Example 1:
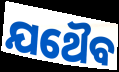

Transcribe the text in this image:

ଯଥୈବ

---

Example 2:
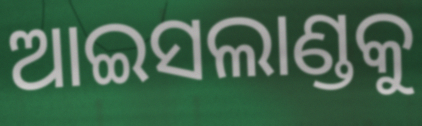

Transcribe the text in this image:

ଆଇସଲାଣ୍ଡକୁ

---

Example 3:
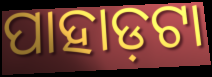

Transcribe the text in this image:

ପାହାଡ଼ଟା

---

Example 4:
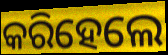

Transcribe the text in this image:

କରିହେଲେ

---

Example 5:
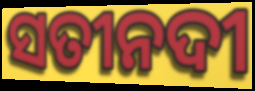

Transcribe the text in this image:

ସତୀନଦୀ